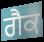
ਗੈਕ